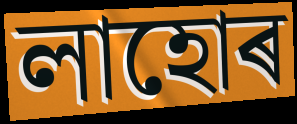
লাহোৰ